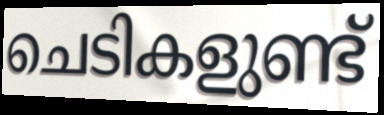
ചെടികളുണ്ട്